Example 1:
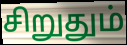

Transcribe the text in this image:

சிறுதும்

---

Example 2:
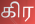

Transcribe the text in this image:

கிர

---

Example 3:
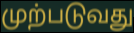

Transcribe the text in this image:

முற்படுவது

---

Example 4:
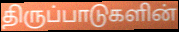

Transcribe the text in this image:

திருப்பாடுகளின்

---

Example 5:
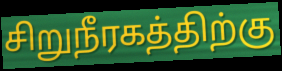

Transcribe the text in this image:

சிறுநீரகத்திற்கு